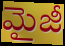
మైజీ